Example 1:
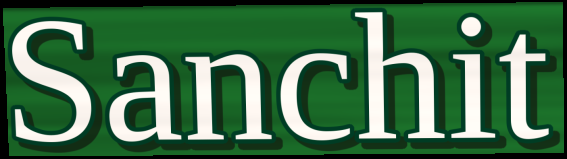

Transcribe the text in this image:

Sanchit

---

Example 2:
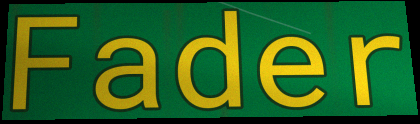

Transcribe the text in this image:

Fader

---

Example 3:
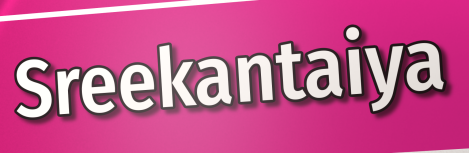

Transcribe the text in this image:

Sreekantaiya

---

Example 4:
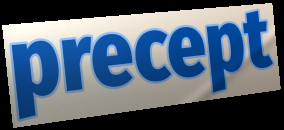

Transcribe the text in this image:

precept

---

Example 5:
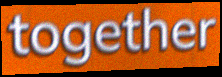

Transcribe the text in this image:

together